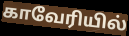
காவேரியில்